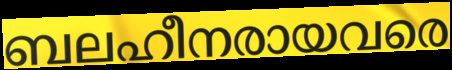
ബലഹീനരായവരെ